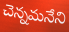
చెన్నమనేని